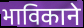
भाविकाने